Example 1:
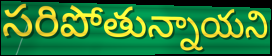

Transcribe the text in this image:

సరిపోతున్నాయని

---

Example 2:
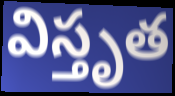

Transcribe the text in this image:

విస్తృత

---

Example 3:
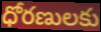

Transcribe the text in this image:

ధోరణులకు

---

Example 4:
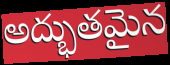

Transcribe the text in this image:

అద్భుతమైన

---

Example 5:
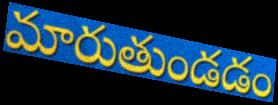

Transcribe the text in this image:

మారుతుండడం